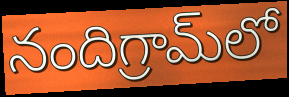
నందిగ్రామ్‌లో